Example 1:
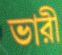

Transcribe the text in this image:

ভারী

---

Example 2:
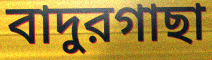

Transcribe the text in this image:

বাদুরগাছা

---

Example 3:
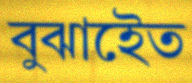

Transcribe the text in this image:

বুঝাইেত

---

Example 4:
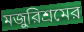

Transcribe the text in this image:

মজুরিশ্রমের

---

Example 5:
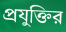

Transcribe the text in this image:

প্রযুক্তির